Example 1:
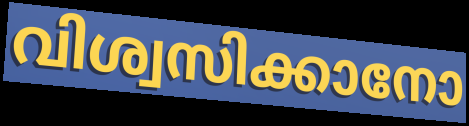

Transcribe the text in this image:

വിശ്വസിക്കാനോ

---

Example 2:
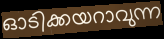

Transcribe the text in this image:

ഓടിക്കയറാവുന്ന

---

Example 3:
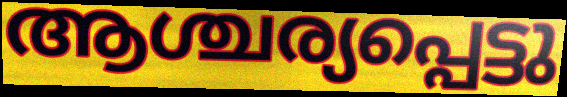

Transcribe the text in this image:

ആശ്ചര്യപ്പെട്ടു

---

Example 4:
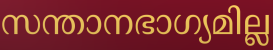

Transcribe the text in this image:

സന്താനഭാഗ്യമില്ല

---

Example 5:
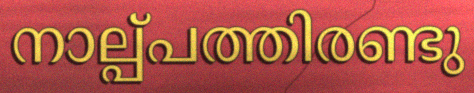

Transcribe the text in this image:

നാല്പ്പത്തിരണ്ടു